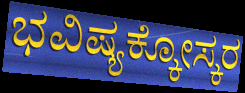
ಭವಿಷ್ಯಕ್ಕೋಸ್ಕರ